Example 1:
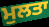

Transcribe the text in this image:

ਮੁਲਤਾ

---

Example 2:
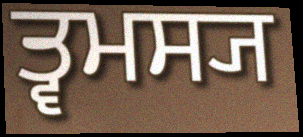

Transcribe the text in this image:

ਤ੍ਵਮਸ੍ਯ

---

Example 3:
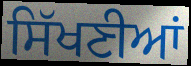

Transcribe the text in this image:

ਸਿੱਖਣੀਆਂ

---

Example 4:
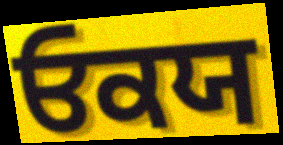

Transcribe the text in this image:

ਓਕਯ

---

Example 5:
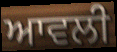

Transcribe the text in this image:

ਆਵਲੀ